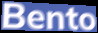
Bento